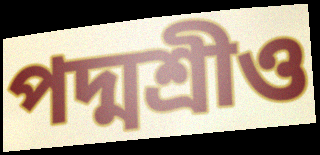
পদ্মশ্রীও